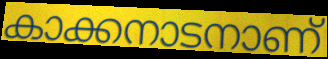
കാക്കനാടനാണ്